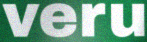
veru